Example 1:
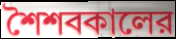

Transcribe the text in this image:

শৈশবকালের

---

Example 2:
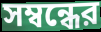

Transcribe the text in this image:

সম্বন্ধের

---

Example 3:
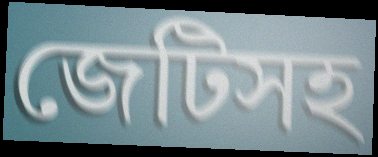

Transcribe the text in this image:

জেটিসহ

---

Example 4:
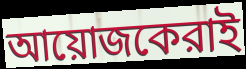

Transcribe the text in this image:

আয়োজকেরাই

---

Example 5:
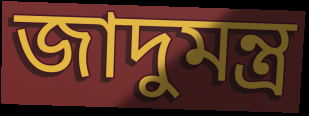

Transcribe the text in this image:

জাদুমন্ত্র